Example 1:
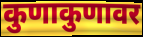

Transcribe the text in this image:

कुणाकुणावर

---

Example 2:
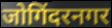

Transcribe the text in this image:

जोगिंदरनगर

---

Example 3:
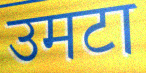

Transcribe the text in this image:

उमटा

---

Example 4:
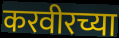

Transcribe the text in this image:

करवीरच्या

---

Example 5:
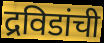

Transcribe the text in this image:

द्रविडांची